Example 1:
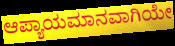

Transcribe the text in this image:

ಆಪ್ಯಾಯಮಾನವಾಗಿಯೇ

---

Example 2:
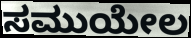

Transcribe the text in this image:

ಸಮುಯೇಲ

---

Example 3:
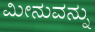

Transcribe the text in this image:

ಮೀನುವನ್ನು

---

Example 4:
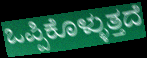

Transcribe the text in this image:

ಒಪ್ಪಿಕೊಳ್ಳುತ್ತದೆ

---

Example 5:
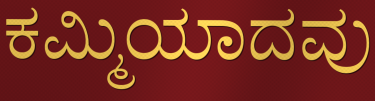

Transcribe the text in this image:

ಕಮ್ಮಿಯಾದವು